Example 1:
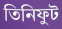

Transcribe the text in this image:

তিনিফুট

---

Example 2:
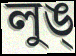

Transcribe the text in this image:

লুঙ্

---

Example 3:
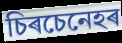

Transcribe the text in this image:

চিৰচেনেহৰ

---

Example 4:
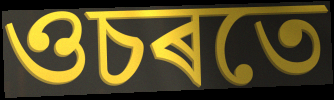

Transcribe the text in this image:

ওচৰতে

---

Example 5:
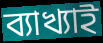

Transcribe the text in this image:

ব্যাখ্যাই